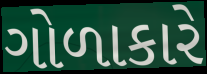
ગોળાકારે